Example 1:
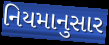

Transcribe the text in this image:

નિયમાનુસાર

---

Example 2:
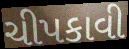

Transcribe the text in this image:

ચીપકાવી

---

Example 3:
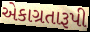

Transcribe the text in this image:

એકાગ્રતારૂપી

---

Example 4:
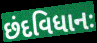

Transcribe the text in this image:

છંદવિધાનઃ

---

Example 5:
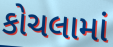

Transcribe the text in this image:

કોચલામાં